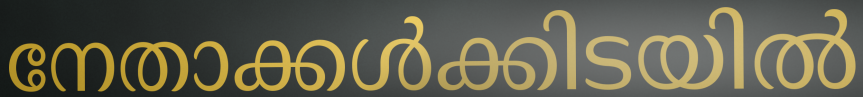
നേതാക്കൾക്കിടയിൽ